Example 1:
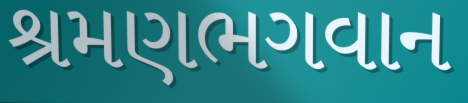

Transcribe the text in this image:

શ્રમણભગવાન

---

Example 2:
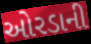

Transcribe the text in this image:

ઓરડાની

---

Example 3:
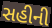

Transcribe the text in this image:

સહીની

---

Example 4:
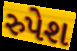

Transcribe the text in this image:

રુપેશ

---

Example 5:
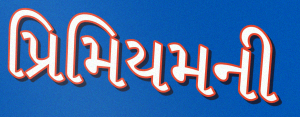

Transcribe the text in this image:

પ્રિમિયમની